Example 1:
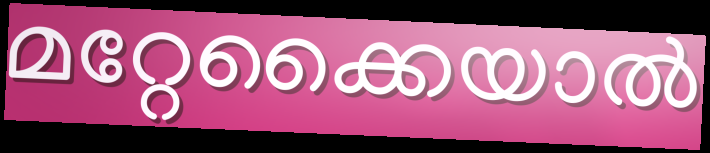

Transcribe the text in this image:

മറ്റേക്കൈയാൽ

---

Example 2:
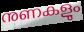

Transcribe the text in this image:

നുണകളും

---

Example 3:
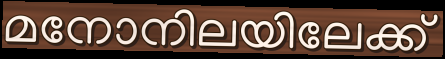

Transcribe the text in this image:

മനോനിലയിലേക്ക്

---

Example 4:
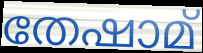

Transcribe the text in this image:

തേഷാമ്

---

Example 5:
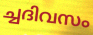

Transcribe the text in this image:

ച്ചദിവസം